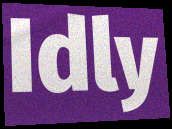
Idly